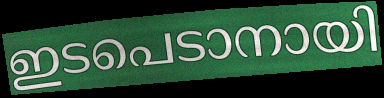
ഇടപെടാനായി